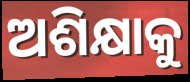
ଅଶିକ୍ଷାକୁ